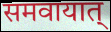
समवायात्